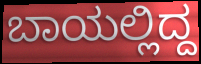
ಬಾಯಲ್ಲಿದ್ದ